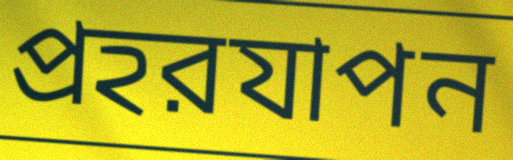
প্রহরযাপন